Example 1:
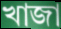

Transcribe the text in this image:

খাজা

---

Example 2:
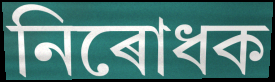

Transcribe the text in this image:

নিৰোধক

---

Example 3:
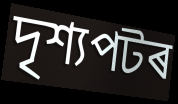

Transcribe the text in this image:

দৃশ্যপটৰ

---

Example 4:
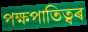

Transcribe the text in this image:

পক্ষপাতিত্বৰ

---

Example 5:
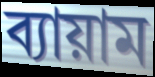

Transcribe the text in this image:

ব্যায়াম